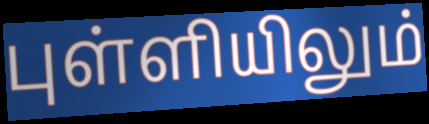
புள்ளியிலும்